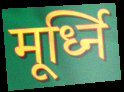
मूर्ध्नि